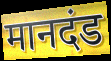
मानदंड